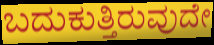
ಬದುಕುತ್ತಿರುವುದೇ